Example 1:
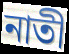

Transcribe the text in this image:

নাতী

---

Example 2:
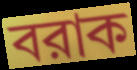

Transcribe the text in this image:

বরাক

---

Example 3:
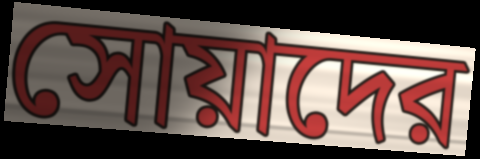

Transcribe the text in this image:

সোয়াদের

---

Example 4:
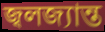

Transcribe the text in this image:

জ্বলজ্যান্ত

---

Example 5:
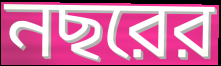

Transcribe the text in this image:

নছরের